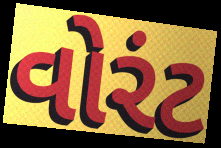
વોરંટ